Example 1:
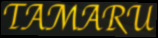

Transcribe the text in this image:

TAMARU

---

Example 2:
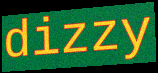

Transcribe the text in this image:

dizzy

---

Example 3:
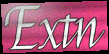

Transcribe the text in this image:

Extn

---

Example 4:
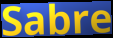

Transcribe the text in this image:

Sabre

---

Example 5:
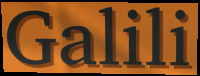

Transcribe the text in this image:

Galili